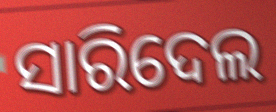
ସାରିଦେଲ